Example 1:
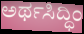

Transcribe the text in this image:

ಅರ್ಥಸಿದ್ಧಿಂ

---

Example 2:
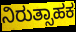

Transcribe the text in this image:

ನಿರುತ್ಸಾಹಕ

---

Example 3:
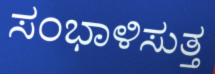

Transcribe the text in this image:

ಸಂಭಾಳಿಸುತ್ತ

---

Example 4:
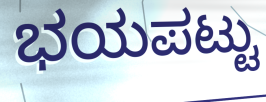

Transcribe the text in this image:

ಭಯಪಟ್ಟು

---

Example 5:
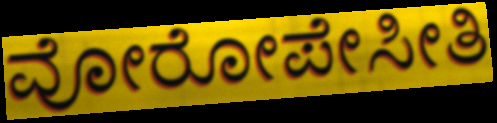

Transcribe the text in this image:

ವೋರೋಪೇಸೀತಿ